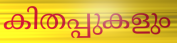
കിതപ്പുകളും